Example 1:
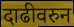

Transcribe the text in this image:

दाढीवरुन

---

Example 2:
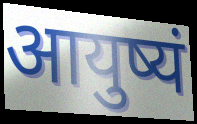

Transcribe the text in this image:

आयुष्यं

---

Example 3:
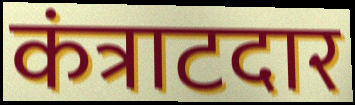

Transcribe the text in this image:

कंत्राटदार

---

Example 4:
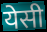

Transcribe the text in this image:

येसी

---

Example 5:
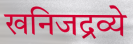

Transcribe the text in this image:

खनिजद्रव्ये